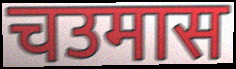
चउमास